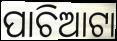
ପାଚିଆଟା